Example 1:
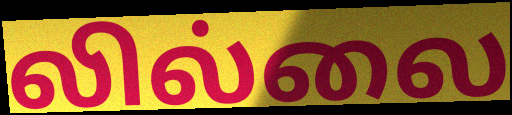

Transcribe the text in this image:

லில்லை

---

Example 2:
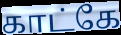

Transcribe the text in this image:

காட்கே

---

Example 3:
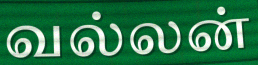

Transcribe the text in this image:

வல்லன்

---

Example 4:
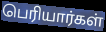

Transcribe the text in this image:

பெரியார்கள்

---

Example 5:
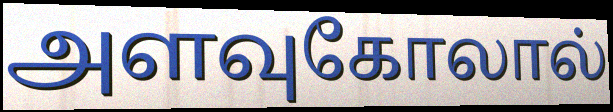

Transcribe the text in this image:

அளவுகோலால்